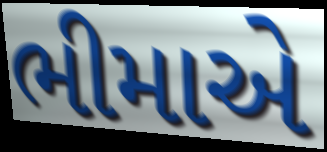
ભીમાએ